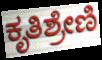
ಕೃತಿಶ್ರೇಣಿ